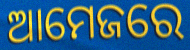
ଆମେଜରେ